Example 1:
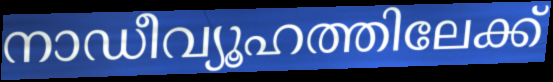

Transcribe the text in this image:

നാഡീവ്യൂഹത്തിലേക്ക്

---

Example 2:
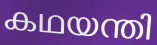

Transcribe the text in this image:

കഥയന്തി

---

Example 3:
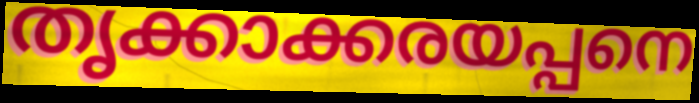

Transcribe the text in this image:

തൃക്കാക്കരയപ്പനെ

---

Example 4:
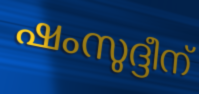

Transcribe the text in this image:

ഷംസുദ്ദീന്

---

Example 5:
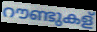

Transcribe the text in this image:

റൗണ്ടുകള്